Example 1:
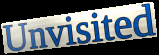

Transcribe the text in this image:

Unvisited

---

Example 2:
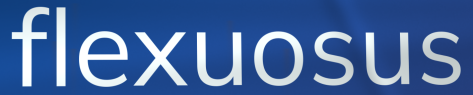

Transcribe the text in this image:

flexuosus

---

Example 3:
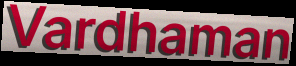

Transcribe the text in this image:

Vardhaman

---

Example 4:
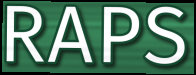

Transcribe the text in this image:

RAPS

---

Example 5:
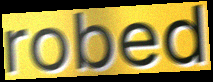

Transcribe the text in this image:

robed